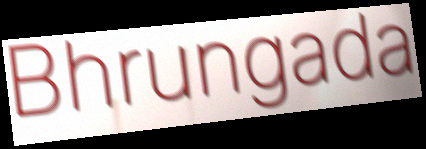
Bhrungada